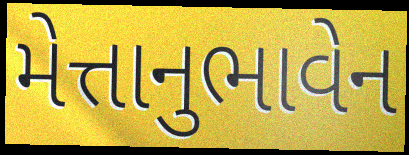
મેત્તાનુભાવેન